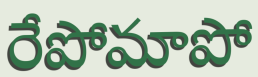
రేపోమాపో